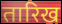
तारिख